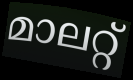
മാലറ്റ്